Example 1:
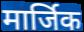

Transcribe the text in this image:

मार्जिक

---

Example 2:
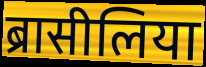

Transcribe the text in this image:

ब्रासीलिया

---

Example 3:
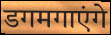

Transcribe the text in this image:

डगमगाएंगे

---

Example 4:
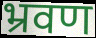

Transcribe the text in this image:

भ्रवण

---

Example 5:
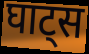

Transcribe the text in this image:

घाट्स